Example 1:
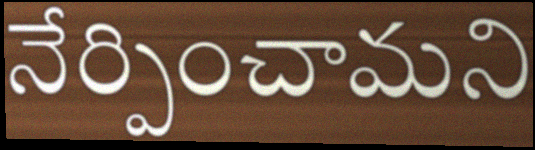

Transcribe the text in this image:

నేర్పించామని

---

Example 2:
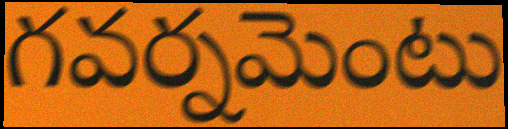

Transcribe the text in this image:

గవర్నమెంటు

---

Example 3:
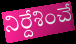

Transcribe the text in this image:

నిర్దేశించే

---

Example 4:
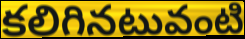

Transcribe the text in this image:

కలిగినటువంటి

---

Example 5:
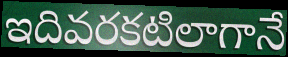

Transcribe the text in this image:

ఇదివరకటిలాగానే